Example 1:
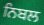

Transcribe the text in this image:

ਨਿਬਲ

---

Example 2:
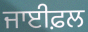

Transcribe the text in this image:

ਜਾਈਫ਼ਲ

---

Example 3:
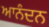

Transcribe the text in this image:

ਆਨੰਦਨ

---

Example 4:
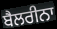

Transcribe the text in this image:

ਬੈਲਰੀਨਾ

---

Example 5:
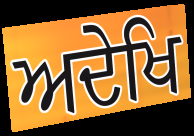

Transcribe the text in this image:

ਅਦੇਖਿ